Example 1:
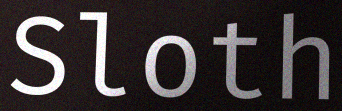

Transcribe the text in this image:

Sloth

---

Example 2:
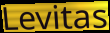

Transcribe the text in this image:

Levitas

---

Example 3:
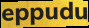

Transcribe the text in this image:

eppudu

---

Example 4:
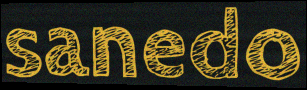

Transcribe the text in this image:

sanedo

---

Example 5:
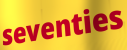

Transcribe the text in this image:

seventies